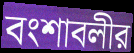
বংশাবলীর